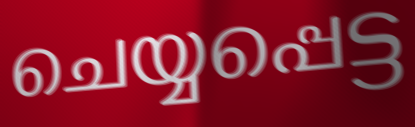
ചെയ്യപ്പെട്ട